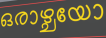
ഒരാഴ്ചയോ